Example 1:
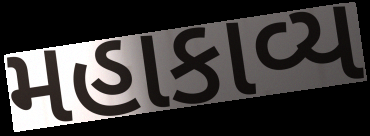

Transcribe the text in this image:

મહાકાવ્ય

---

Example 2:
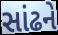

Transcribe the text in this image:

સાંઢને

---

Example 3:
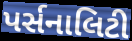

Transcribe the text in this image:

પર્સનાલિટી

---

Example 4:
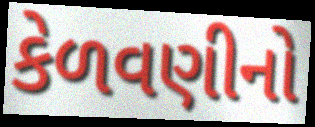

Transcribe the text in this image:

કેળવણીનો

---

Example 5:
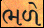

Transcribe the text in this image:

ભળે